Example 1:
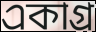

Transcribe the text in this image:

একাগ্র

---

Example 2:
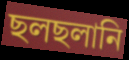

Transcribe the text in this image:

ছলছলানি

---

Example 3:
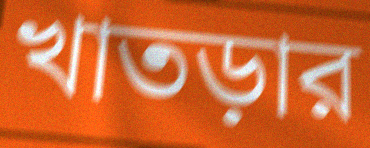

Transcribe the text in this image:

খাতড়ার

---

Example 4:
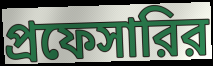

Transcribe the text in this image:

প্রফেসারির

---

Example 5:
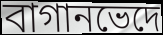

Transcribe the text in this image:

বাগানভেদে